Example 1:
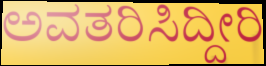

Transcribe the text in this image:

ಅವತರಿಸಿದ್ದೀರಿ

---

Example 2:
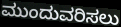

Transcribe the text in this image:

ಮುಂದುವರಿಸಲು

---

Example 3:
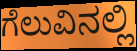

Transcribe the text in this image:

ಗೆಲುವಿನಲ್ಲಿ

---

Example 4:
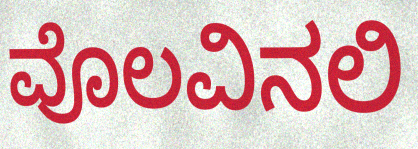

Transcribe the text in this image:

ವೊಲವಿನಲಿ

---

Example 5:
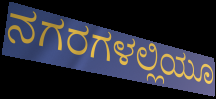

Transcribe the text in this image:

ನಗರಗಳಲ್ಲಿಯೂ